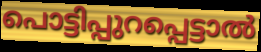
പൊട്ടിപ്പുറപ്പെട്ടാൽ